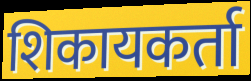
शिकायकर्ता